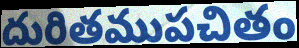
దురితముపచితం